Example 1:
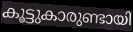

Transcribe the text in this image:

കൂട്ടുകാരുണ്ടായി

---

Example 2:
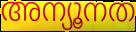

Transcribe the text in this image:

അന്യൂനത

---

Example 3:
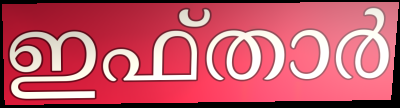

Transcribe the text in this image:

ഇഫ്താർ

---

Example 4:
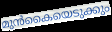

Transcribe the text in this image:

മുൻകൈയെടുക്കും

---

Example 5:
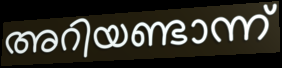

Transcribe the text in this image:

അറിയണ്ടാന്ന്